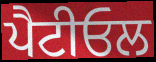
ਪੈਟੀਓਲ